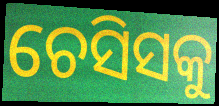
ଚେସିସକୁ